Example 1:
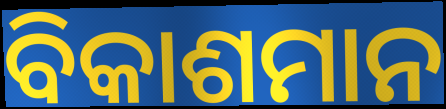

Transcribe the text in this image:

ବିକାଶମାନ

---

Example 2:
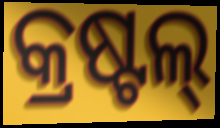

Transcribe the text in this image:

କ୍ରଷ୍ଟଲ୍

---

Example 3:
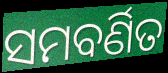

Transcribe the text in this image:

ସମବର୍ଣିତ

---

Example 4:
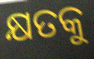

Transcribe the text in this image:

କ୍ଷତକୁ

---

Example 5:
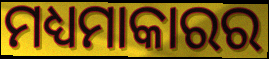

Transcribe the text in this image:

ମଧ୍ୟମାକାରର